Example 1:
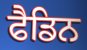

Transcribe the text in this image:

ਫੈਡਿਨ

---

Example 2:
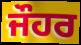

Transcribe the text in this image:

ਜੌਹਰ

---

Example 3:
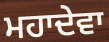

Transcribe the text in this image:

ਮਹਾਦੇਵਾ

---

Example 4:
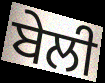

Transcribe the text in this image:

ਬੇਲੀ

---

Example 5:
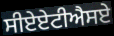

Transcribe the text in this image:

ਸੀਏਏਟੀਐਸਏ